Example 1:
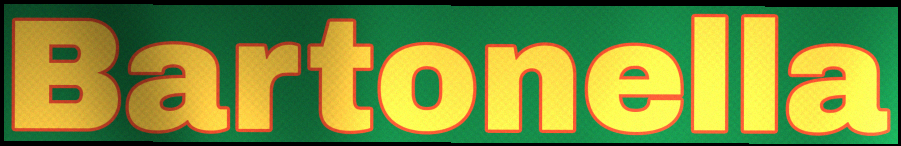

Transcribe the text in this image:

Bartonella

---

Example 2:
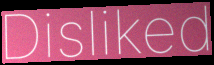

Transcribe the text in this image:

Disliked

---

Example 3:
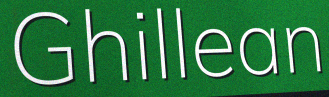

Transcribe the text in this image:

Ghillean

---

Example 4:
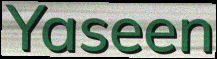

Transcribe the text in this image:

Yaseen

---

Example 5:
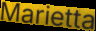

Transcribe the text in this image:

Marietta